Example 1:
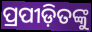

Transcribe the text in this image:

ପ୍ରପୀଡ଼ିତଙ୍କୁ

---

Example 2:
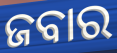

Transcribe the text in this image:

ଜବାର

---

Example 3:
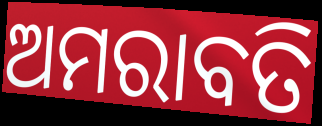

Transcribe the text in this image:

ଅମରାବତି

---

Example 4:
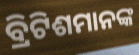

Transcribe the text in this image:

ବ୍ରିଟିଶମାନଙ୍କ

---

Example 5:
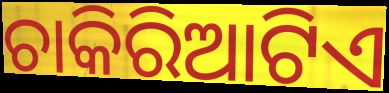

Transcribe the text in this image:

ଚାକିରିଆଟିଏ